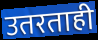
उतरताही